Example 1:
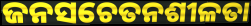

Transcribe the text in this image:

ଜନସଚେତନଶୀଳତା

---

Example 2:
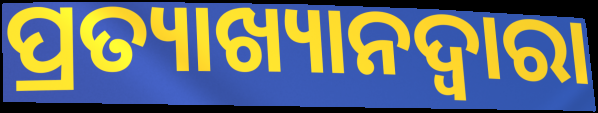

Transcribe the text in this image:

ପ୍ରତ୍ୟାଖ୍ୟାନଦ୍ଵାରା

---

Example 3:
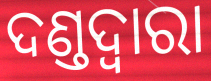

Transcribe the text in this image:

ଦଣ୍ଡଦ୍ୱାରା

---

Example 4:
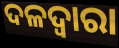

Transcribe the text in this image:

ଦଳଦ୍ୱାରା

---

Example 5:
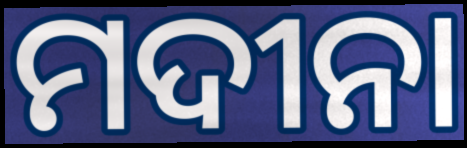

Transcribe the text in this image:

ମଦୀନା